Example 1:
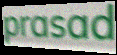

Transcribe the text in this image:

prasad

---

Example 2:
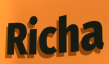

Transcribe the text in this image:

Richa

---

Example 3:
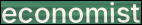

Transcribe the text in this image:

economist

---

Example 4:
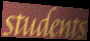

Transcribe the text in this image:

students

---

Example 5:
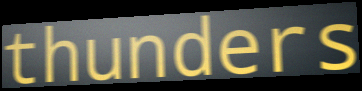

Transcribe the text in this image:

thunders